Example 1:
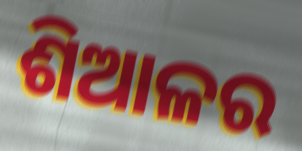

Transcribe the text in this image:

ଶିଆଳର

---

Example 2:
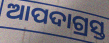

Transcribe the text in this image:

ଆପଦାଗ୍ରସ୍ତ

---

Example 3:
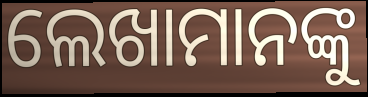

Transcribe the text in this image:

ଲେଖାମାନଙ୍କୁ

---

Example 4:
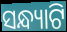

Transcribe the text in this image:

ସନ୍ଧ୍ୟାଟି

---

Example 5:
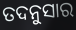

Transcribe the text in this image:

ତଦନୁସାର